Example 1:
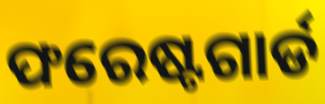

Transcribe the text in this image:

ଫରେଷ୍ଟଗାର୍ଡ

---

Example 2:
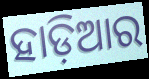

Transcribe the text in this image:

ହାଡ଼ିଆର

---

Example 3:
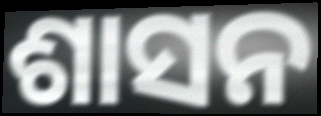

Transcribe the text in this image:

ଶାସନ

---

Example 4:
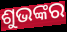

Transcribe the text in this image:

ଶୁଭଙ୍କର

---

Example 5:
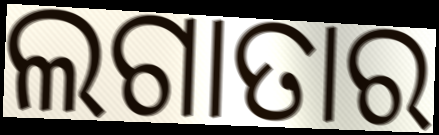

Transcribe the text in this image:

ଲଗାତାର